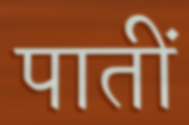
पातीं